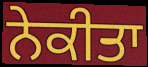
ਨੇਕੀਤਾ